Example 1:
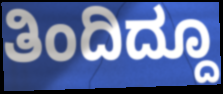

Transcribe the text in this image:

ತಿಂದಿದ್ದೂ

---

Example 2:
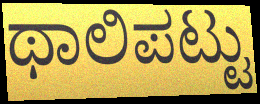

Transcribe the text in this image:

ಥಾಲಿಪಟ್ಟು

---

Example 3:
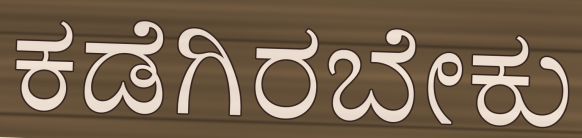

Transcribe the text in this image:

ಕಡೆಗಿರಬೇಕು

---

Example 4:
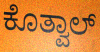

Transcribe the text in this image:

ಕೊತ್ವಾಲ್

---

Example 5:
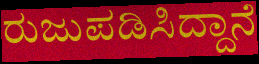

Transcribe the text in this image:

ರುಜುಪಡಿಸಿದ್ದಾನೆ